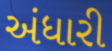
અંધારી